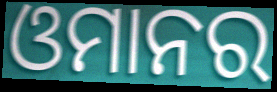
ଓମାନର